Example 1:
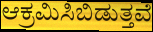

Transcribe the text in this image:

ಆಕ್ರಮಿಸಿಬಿಡುತ್ತವೆ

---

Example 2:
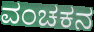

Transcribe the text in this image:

ವಂಚಕನ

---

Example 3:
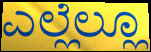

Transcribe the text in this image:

ಎಲ್ಲೆಲ್ಲೂ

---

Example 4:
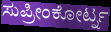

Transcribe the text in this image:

ಸುಪ್ರೀಂಕೋರ್ಟ್ನ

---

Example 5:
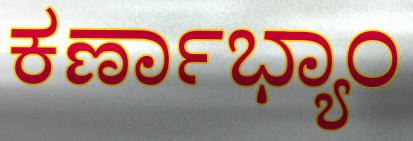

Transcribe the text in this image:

ಕರ್ಣಾಭ್ಯಾಂ